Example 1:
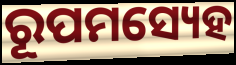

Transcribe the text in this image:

ରୂପମସ୍ୟେହ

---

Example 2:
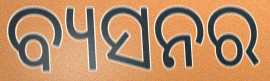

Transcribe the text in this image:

ବ୍ୟସନର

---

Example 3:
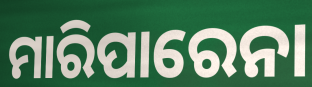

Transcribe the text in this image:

ମାରିପାରେନା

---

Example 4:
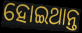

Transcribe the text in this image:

ହୋଇଥାନ୍ତ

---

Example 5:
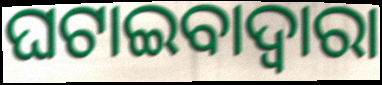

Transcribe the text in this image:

ଘଟାଇବାଦ୍ୱାରା